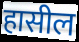
हासील